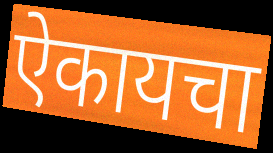
ऐकायचा